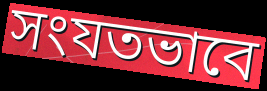
সংযতভাবে